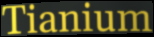
Tianium